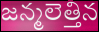
జన్మలెత్తిన